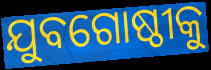
ଯୁବଗୋଷ୍ଠୀକୁ